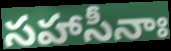
సహాసీనాః